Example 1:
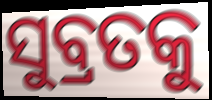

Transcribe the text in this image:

ସୁବ୍ରତକୁ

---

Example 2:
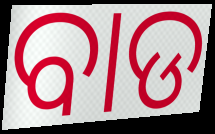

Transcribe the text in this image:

ବାଡ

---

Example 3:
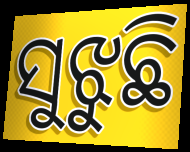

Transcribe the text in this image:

ସୁଝୁଛି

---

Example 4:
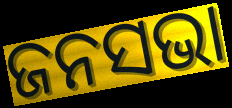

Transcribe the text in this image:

ଜନସଭା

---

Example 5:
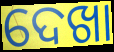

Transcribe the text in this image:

ଦେଖା